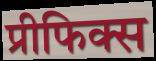
प्रीफिक्स